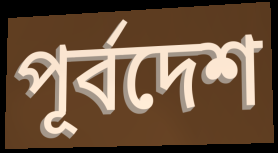
পূর্বদেশ